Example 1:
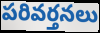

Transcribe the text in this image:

పరివర్తనలు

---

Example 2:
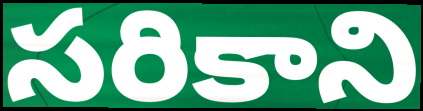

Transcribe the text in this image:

సరికాని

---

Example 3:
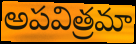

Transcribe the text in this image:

అపవిత్రమా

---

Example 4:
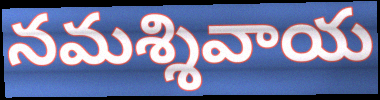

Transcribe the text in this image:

నమశ్శివాయ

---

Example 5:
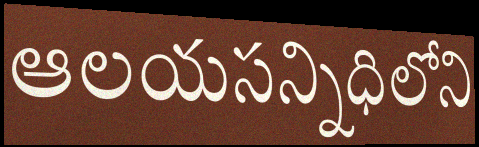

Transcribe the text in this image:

ఆలయసన్నిధిలోని